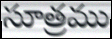
సూత్రము